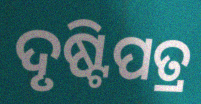
ଦୃଷ୍ଟିପତ୍ର